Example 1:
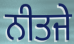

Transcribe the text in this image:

ਨੀਤਜੇ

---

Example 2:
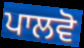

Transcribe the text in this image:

ਪਾਲਵੋ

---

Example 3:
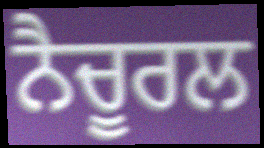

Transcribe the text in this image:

ਨੈਚੂਰਲ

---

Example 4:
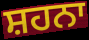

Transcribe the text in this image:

ਸ਼ਹਨਾ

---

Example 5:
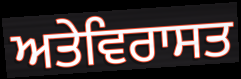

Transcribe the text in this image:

ਅਤੇਵਿਰਾਸਤ